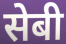
सेबी